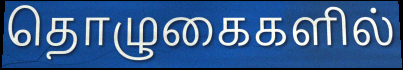
தொழுகைகளில்